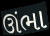
ઊંભા